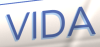
VIDA